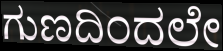
ಗುಣದಿಂದಲೇ